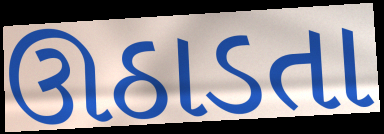
ઊઠાડતા